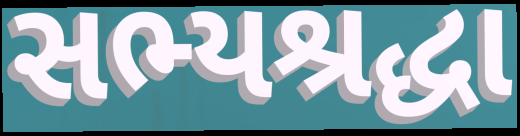
સભ્યશ્રદ્ધા